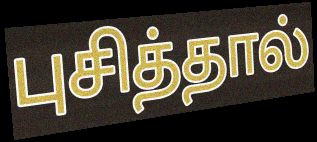
புசித்தால்